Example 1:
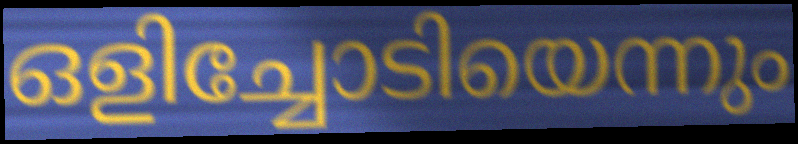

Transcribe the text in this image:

ഒളിച്ചോടിയെന്നും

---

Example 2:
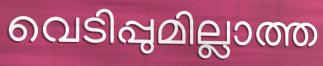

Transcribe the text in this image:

വെടിപ്പുമില്ലാത്ത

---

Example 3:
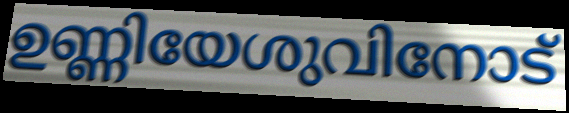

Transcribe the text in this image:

ഉണ്ണിയേശുവിനോട്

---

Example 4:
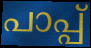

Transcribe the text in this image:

പാപ്പ്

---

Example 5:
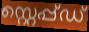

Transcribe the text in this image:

സ്റ്റെപ്പ്ഡ്